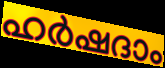
ഹർഷദാം